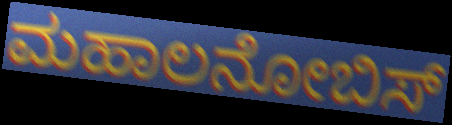
ಮಹಾಲನೋಬಿಸ್